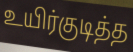
உயிர்குடித்த